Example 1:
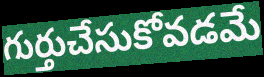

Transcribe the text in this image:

గుర్తుచేసుకోవడమే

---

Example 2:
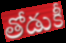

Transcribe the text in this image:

తోడుకీ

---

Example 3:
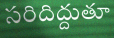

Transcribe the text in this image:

సరిదిద్దుతూ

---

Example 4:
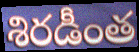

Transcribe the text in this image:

శిరడీంత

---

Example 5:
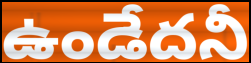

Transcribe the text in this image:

ఉండేదనీ